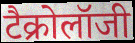
टैक्रोलॉजी